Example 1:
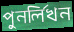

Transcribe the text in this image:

পুনর্লিখন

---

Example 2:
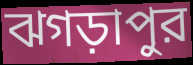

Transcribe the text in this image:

ঝগড়াপুর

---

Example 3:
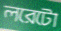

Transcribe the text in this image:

লরেটো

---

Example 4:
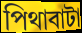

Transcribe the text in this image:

পিথাবাটা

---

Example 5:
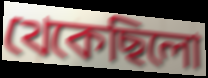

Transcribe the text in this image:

থেকেছিলো